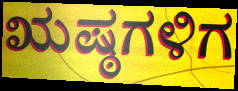
ಋಷ್ಠಗಳಿಗ